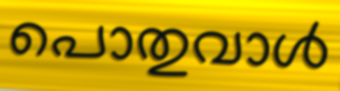
പൊതുവാൾ